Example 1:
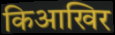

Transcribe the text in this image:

किआखिर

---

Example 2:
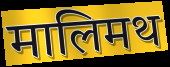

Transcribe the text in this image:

मालिमथ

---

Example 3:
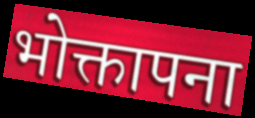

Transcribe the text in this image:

भोक्तापना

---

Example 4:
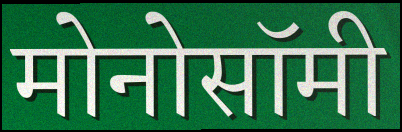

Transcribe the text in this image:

मोनोसॉमी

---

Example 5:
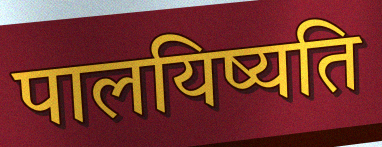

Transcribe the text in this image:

पालयिष्यति